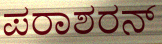
ಪರಾಶರನ್